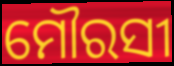
ମୌରସୀ